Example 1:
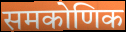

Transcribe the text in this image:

समकोणिक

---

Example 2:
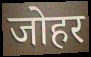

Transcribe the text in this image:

जोहर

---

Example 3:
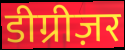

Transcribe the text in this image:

डीग्रीज़र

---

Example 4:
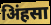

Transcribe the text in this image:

अिंहसा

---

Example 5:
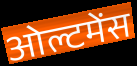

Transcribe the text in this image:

ओल्टमेंस